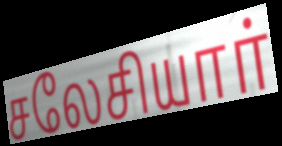
சலேசியார்